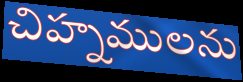
చిహ్నములను